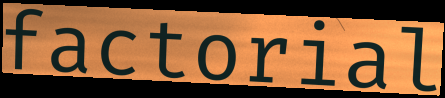
factorial